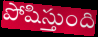
పోషిస్తుంది